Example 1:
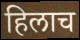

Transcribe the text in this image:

हिलाच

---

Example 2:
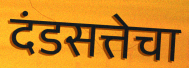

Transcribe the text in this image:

दंडसत्तेचा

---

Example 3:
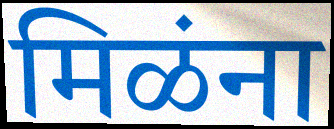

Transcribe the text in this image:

मिळंना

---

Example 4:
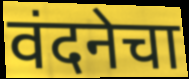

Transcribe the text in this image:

वंदनेचा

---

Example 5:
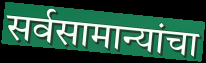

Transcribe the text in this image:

सर्वसामान्यांचा